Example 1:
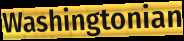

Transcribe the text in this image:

Washingtonian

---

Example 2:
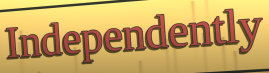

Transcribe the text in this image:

Independently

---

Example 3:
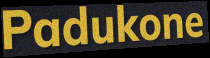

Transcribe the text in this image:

Padukone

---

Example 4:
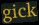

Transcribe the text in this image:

gick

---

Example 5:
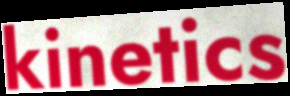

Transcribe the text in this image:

kinetics